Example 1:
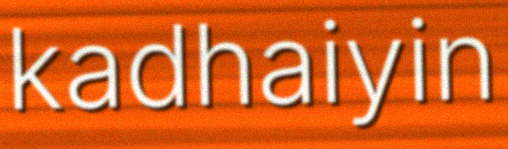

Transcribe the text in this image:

kadhaiyin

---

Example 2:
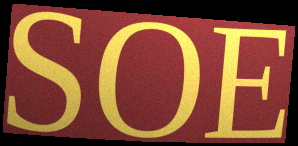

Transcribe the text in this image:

SOE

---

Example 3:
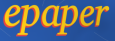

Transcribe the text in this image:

epaper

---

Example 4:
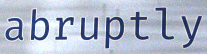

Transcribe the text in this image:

abruptly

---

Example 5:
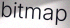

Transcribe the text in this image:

bitmap